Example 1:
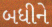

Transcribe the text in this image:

બધીને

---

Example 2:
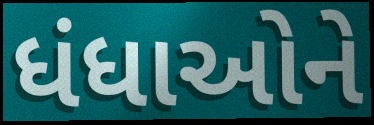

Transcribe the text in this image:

ધંધાઓને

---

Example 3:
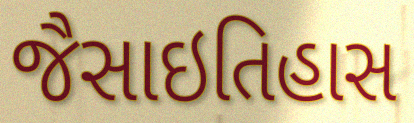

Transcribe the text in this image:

જૈસાઇતિહાસ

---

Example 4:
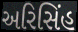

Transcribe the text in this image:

અરિસિંહ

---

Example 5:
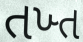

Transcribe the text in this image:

તખ્ત